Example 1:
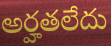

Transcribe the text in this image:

అర్హతలేదు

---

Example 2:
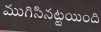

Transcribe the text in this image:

ముగిసినట్టయింది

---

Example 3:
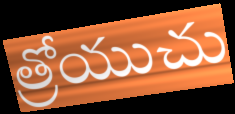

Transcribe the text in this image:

త్రోయుచు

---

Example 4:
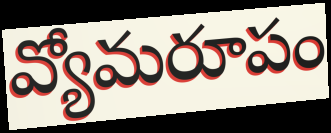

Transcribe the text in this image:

వ్యోమరూపం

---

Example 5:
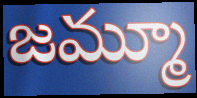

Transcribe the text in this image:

జమ్మూ